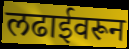
लढाईवरून